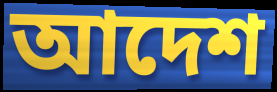
আদেশ